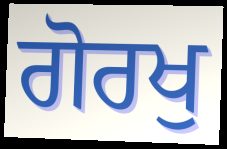
ਗੋਰਖੁ